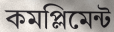
কমপ্লিমেন্ট